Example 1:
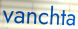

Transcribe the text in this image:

vanchta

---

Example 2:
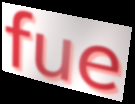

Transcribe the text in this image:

fue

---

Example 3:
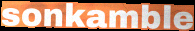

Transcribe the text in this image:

sonkamble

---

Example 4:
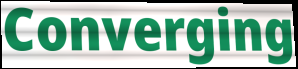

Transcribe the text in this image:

Converging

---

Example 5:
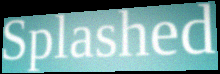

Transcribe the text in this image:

Splashed